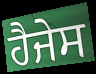
ਹੈਜੇਸ